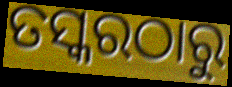
ତସ୍କରଠାରୁ